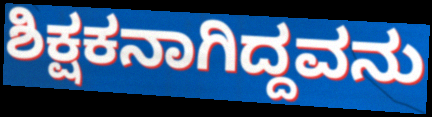
ಶಿಕ್ಷಕನಾಗಿದ್ದವನು